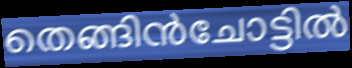
തെങ്ങിൻചോട്ടിൽ